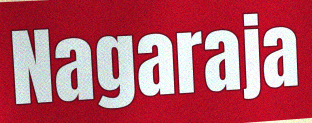
Nagaraja